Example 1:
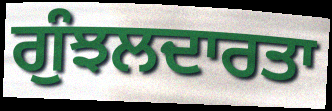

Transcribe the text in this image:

ਗੁੰਝਲਦਾਰਤਾ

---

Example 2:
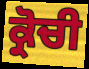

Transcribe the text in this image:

ਕ੍ਰੋਚੀ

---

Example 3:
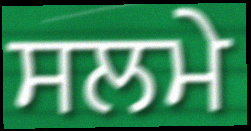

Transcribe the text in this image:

ਸਲਮੇ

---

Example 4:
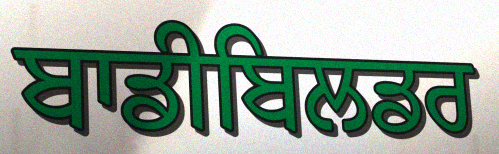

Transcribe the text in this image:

ਬਾਡੀਬਿਲਡਰ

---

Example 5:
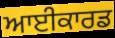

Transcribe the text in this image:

ਆਈਕਾਰਡ